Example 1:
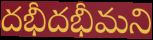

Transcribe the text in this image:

దభీదభీమని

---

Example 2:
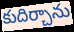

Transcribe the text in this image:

కుదిర్చాను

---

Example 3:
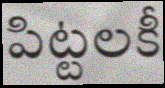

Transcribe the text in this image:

పిట్టలకీ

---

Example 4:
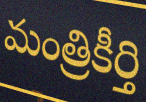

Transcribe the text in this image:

మంత్రికీర్తి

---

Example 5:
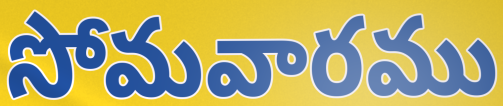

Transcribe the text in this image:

సోమవారము